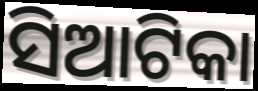
ସିଆଟିକା